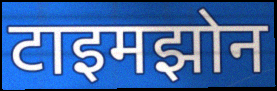
टाइमझोन